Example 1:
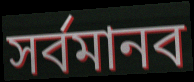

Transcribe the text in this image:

সর্বমানব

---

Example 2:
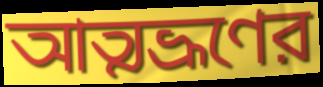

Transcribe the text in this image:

আত্মভ্রূণের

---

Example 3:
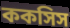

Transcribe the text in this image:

ককসিস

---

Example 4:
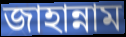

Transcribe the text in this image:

জাহান্নাম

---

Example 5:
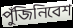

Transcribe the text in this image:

পুঁজিনিবেশ